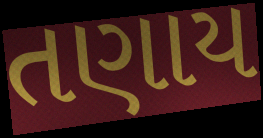
તણાય